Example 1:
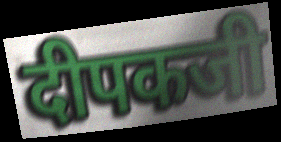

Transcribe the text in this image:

दीपकजी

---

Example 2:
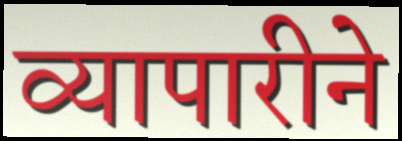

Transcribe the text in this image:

व्यापारीने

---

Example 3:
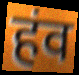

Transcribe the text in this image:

हंव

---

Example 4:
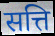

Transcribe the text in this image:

सत्ति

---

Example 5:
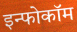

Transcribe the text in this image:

इन्फोकॉम